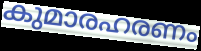
കുമാരഹരണം